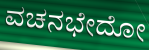
ವಚನಭೇದೋ